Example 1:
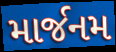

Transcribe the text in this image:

માર્જનમ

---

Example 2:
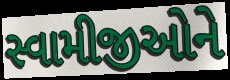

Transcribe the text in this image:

સ્વામીજીઓને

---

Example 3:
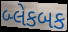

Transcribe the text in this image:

બ્લેકબક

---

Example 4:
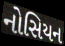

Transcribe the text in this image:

નોસિયન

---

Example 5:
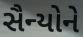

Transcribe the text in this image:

સૈન્યોને